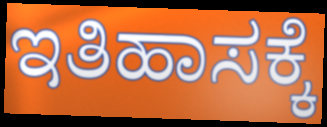
ಇತಿಹಾಸಕ್ಕೆ